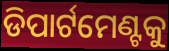
ଡିପାର୍ଟମେଣ୍ଟକୁ